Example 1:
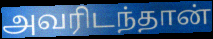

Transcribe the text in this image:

அவரிடந்தான்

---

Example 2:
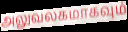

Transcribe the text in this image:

அலுவலகமாகவும்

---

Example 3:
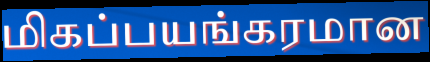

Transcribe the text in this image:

மிகப்பயங்கரமான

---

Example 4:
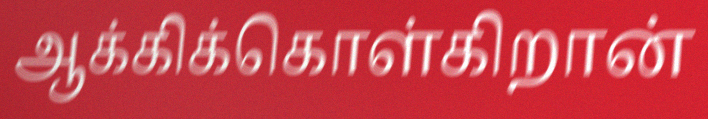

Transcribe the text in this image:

ஆக்கிக்கொள்கிறான்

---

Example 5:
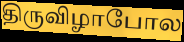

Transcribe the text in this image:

திருவிழாபோல